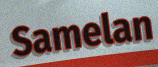
Samelan